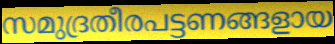
സമുദ്രതീരപട്ടണങ്ങളായ